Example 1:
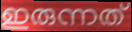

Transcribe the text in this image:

ഇരുന്നത്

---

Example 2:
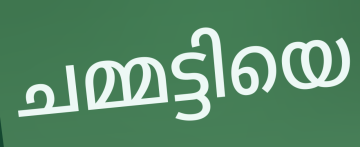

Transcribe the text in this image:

ചമ്മട്ടിയെ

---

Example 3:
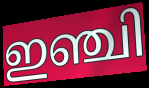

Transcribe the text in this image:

ഇഞ്ചി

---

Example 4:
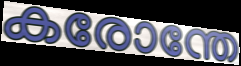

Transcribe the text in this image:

കരോന്തേ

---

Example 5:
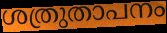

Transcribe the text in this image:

ശത്രുതാപനം